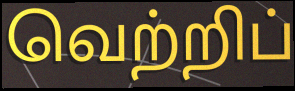
வெற்றிப்